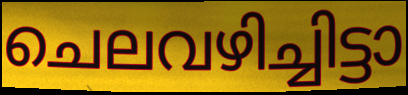
ചെലവഴിച്ചിട്ടാ